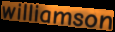
williamson